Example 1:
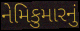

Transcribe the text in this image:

નેમિકુમારનું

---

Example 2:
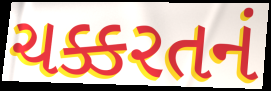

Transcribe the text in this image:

ચક્કરતનં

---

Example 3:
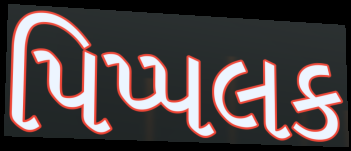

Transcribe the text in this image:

પિપ્પલક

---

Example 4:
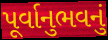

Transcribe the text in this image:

પૂર્વાનુભવનું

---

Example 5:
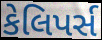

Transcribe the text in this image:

કેલિપર્સ